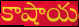
కాషాయ